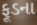
ફૂડના